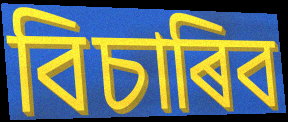
বিচাৰিব